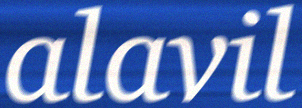
alavil